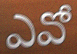
ఎవో